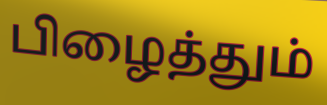
பிழைத்தும்